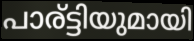
പാര്ട്ടിയുമായി